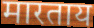
मारताय